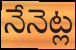
నేనెట్ల